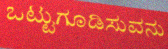
ಒಟ್ಟುಗೂಡಿಸುವನು